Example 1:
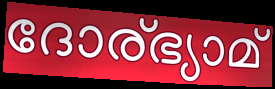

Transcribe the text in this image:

ദോര്ഭ്യാമ്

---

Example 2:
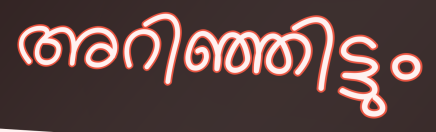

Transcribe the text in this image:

അറിഞ്ഞിട്ടും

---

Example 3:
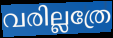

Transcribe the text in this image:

വരില്ലത്രേ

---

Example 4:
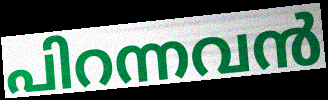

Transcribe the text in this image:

പിറന്നവൻ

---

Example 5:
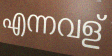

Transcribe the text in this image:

എന്നവള്